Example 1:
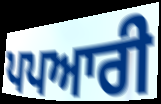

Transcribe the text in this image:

ਪਪਆਰੀ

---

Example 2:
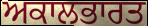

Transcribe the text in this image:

ਅਕਾਲਭਾਰਤ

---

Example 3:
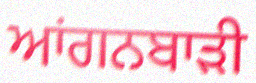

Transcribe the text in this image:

ਆਂਗਨਬਾੜੀ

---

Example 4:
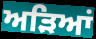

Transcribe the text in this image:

ਅੜਿਆਂ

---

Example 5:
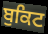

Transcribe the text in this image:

ਬੁਕਿਟ